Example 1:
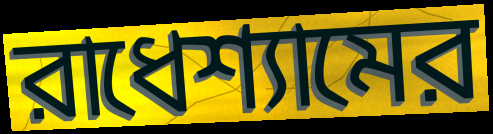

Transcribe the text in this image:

রাধেশ্যামের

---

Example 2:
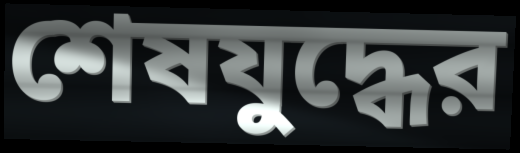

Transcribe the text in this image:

শেষযুদ্ধের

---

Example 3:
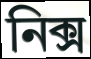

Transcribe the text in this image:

নিক্স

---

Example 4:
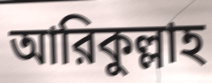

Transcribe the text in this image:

আরিকুল্লাহ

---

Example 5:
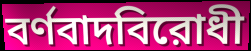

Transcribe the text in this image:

বর্ণবাদবিরোধী